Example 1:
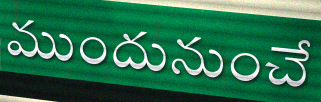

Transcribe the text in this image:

ముందునుంచే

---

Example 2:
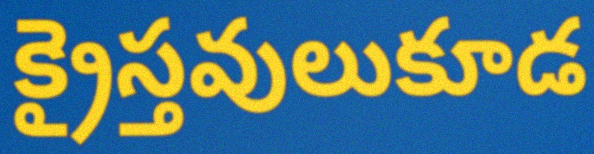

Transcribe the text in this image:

క్రైస్తవులుకూడ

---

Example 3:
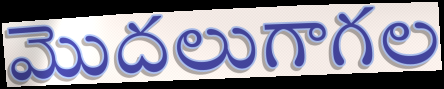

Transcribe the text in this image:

మొదలుగాగల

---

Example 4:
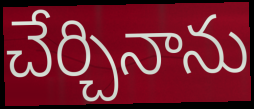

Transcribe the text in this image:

చేర్చినాను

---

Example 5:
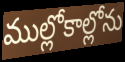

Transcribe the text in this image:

ముల్లోకాల్లోను